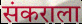
संकराला